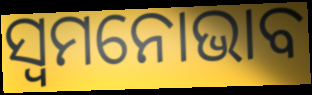
ସ୍ୱମନୋଭାବ